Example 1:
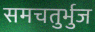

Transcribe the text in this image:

समचतुर्भुज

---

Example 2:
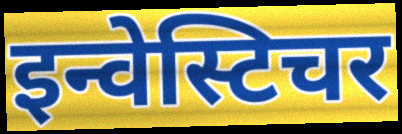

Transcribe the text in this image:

इन्वेस्टिचर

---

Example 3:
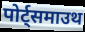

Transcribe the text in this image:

पोर्ट्समाउथ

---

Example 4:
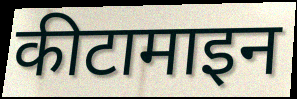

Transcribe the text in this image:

कीटामाइन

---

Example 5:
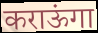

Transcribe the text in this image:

कराऊंगा